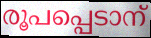
രൂപപ്പെടാന്